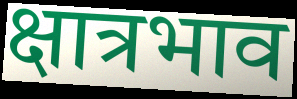
क्षात्रभाव